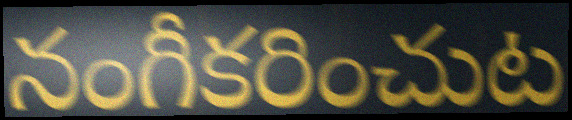
నంగీకరించుట